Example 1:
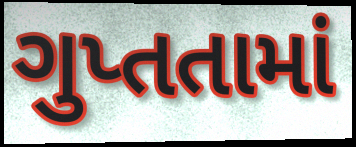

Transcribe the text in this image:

ગુપ્તતામાં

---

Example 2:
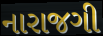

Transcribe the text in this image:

નારાજગી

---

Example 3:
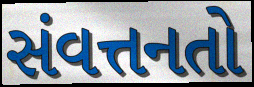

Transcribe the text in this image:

સંવત્તનતો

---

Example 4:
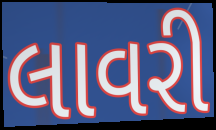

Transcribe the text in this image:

લાવરી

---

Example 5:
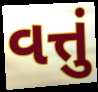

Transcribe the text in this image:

વત્તું